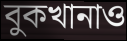
বুকখানাও